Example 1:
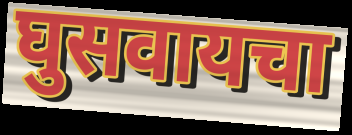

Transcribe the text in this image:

घुसवायचा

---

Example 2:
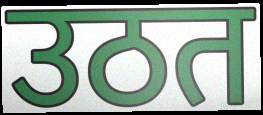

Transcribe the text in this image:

उठत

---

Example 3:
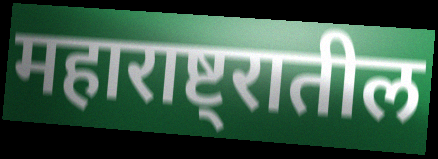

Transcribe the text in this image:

महाराष्ट्रातील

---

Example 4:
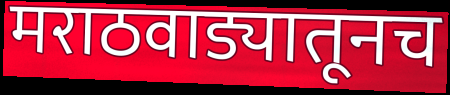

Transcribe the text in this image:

मराठवाड्यातूनच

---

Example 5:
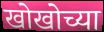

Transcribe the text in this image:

खोखोच्या